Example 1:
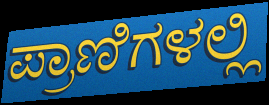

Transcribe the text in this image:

ಪ್ರಾಣಿಗಳಲ್ಲಿ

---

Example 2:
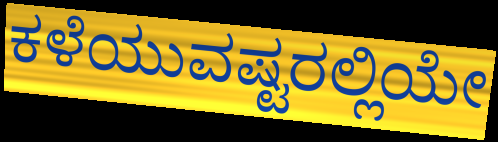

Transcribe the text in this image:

ಕಳೆಯುವಷ್ಟರಲ್ಲಿಯೇ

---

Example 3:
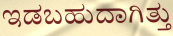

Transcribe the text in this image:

ಇಡಬಹುದಾಗಿತ್ತು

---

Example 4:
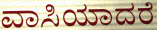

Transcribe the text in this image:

ವಾಸಿಯಾದರೆ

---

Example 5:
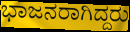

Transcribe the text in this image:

ಭಾಜನರಾಗಿದ್ದರು